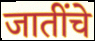
जातींचे